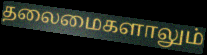
தலைமைகளாலும்